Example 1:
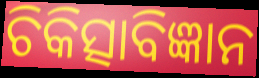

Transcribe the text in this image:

ଚିକିତ୍ସାବିଜ୍ଞାନ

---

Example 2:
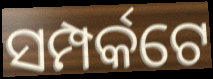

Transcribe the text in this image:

ସମ୍ପର୍କଟେ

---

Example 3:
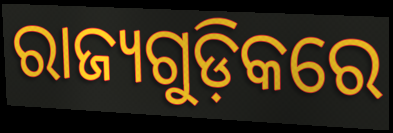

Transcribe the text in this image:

ରାଜ୍ୟଗୁଡ଼ିକରେ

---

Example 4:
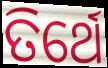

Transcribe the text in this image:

ତିର୍ଥେ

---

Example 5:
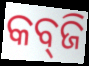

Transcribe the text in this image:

କବ୍‍ଜି